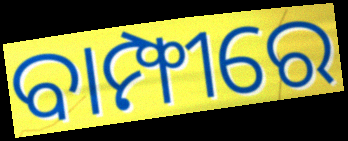
ବାମ୍ଫୀରେ